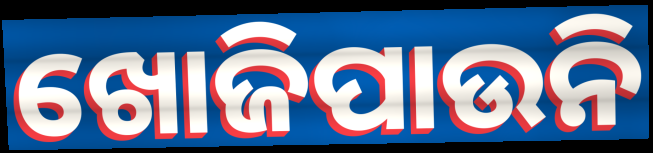
ଖୋଜିପାଉନି